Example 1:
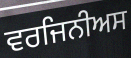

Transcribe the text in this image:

ਵਰਜਿਨੀਅਸ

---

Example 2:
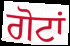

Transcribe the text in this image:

ਗੋਟਾਂ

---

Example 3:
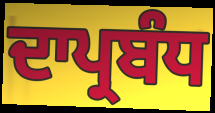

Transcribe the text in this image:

ਦਾਪ੍ਰਬੰਧ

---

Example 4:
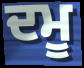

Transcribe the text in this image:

ਦਮੂ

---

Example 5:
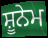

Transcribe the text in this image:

ਸ਼ੂਨੇਮ